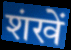
शंखें